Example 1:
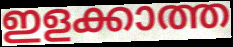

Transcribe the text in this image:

ഇളക്കാത്ത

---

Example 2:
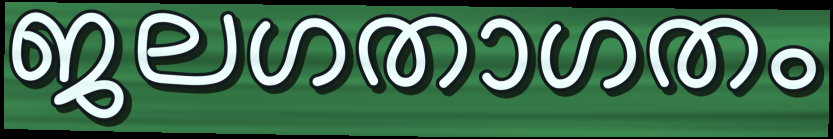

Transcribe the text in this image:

ജലഗതാഗതം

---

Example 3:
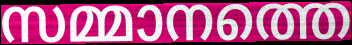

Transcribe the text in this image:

സമ്മാനത്തെ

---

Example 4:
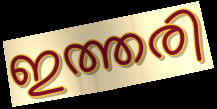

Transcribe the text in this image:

ഇത്തരി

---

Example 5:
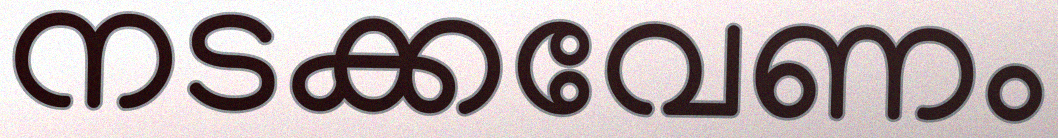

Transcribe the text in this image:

നടക്കവേണം